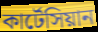
কার্টেসিয়ান